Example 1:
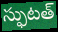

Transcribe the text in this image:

స్ఫుటత్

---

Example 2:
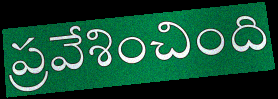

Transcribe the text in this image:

ప్రవేశించింది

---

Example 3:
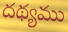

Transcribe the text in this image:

దథ్యము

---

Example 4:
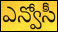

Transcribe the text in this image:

ఎన్వోసీ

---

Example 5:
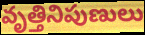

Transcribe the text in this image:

వృత్తినిపుణులు